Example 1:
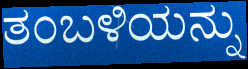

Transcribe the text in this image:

ತಂಬಳಿಯನ್ನು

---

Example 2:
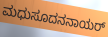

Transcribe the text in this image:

ಮಧುಸೂದನನಾಯರ್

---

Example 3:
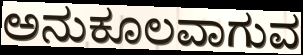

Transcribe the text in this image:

ಅನುಕೂಲವಾಗುವ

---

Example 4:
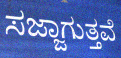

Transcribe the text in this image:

ಸಜ್ಜಾಗುತ್ತವೆ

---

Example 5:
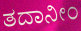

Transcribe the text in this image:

ತದಾನೀಂ